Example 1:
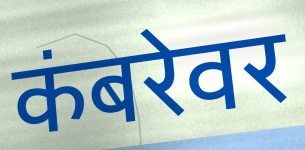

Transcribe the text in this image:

कंबरेवर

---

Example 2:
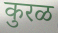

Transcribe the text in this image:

कुरळ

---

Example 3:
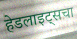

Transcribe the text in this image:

हेडलाइट्सचा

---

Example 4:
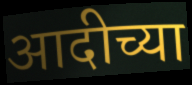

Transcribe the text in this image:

आदीच्या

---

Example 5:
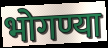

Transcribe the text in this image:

भोगण्या